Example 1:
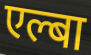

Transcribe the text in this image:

एल्बा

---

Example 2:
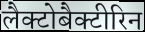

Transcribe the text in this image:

लैक्टोबैक्टीरिन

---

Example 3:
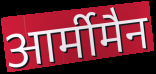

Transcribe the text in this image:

आर्मीमैन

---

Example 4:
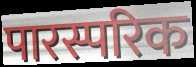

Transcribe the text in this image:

पारस्परिक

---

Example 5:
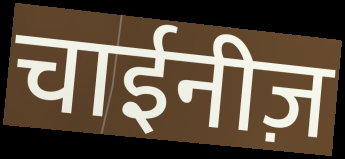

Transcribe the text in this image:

चाईनीज़